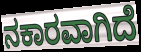
ನಕಾರವಾಗಿದೆ